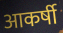
आकर्षी